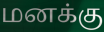
மனக்கு